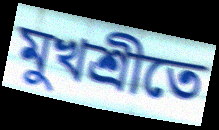
মুখশ্রীতে